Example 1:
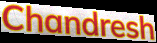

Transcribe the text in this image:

Chandresh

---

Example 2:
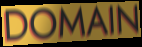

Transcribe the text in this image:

DOMAIN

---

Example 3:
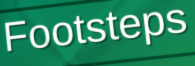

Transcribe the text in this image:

Footsteps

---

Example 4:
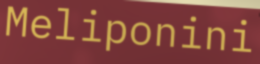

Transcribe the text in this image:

Meliponini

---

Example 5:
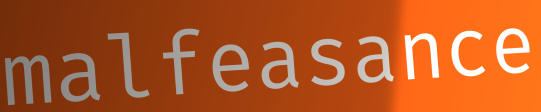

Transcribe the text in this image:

malfeasance